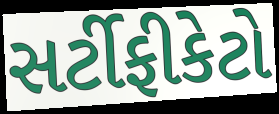
સર્ટીફીકેટો